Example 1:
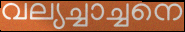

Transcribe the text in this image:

വല്യച്ചാച്ചനെ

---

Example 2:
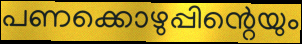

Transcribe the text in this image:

പണക്കൊഴുപ്പിന്റെയും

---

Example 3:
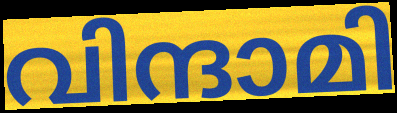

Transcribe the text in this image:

വിന്ദാമി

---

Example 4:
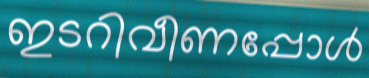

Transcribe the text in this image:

ഇടറിവീണപ്പോൾ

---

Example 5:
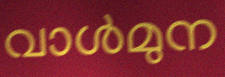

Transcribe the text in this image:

വാൾമുന